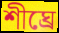
শীঘ্ৰে